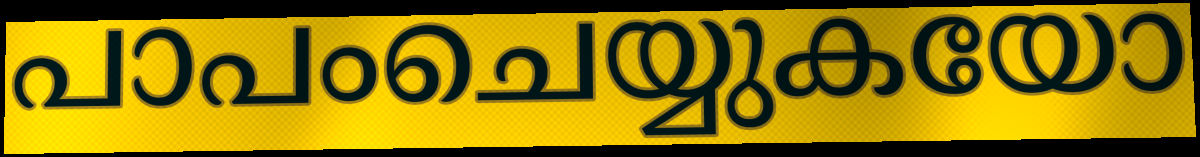
പാപംചെയ്യുകയോ